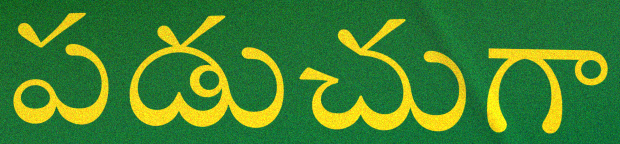
పడుచుగా